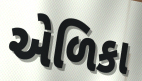
એળિકા